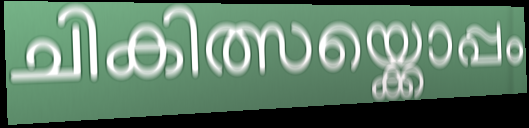
ചികിത്സയ്ക്കൊപ്പം